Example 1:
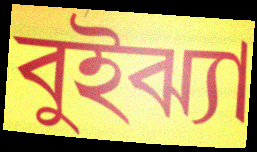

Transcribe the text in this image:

বুইঝ্যা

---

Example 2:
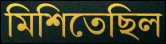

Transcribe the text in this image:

মিশিতেছিল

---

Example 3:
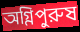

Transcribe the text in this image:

অগ্নিপুরুষ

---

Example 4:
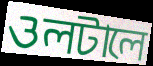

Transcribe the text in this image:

ওলটালে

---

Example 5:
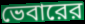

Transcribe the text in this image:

ভেবারের